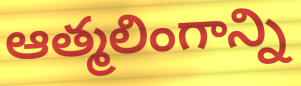
ఆత్మలింగాన్ని